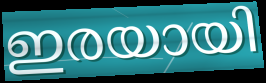
ഇരയായി